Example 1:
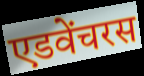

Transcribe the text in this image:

एडवेंचरस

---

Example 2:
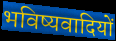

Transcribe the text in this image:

भविष्यवादियों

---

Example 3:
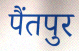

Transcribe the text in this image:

पैंतपुर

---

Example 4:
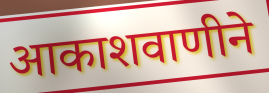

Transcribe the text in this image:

आकाशवाणीने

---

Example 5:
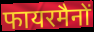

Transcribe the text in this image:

फायरमैनों